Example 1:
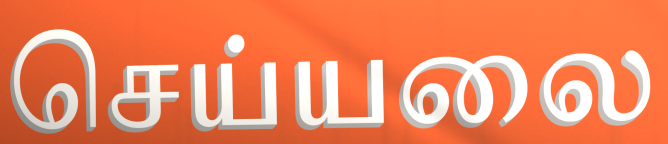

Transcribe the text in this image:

செய்யலை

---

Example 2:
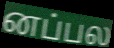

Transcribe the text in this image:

னப்பல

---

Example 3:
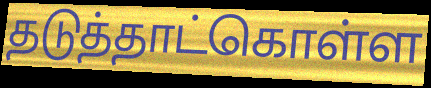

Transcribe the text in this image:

தடுத்தாட்கொள்ள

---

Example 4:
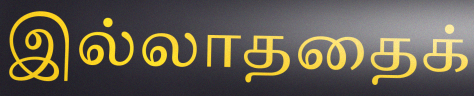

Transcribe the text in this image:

இல்லாததைக்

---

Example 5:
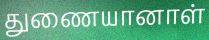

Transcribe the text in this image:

துணையானாள்